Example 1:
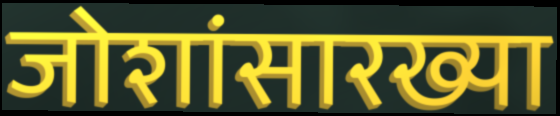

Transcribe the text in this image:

जोशांसारख्या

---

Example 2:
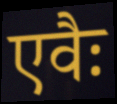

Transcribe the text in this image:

एवैः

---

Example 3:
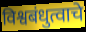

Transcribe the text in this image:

विश्वबंधुत्वाचे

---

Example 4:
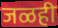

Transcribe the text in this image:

जळही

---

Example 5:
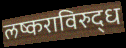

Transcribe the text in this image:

लष्कराविरुद्ध